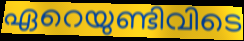
ഏറെയുണ്ടിവിടെ